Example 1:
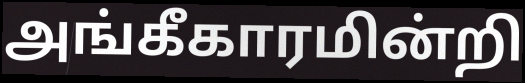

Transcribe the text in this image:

அங்கீகாரமின்றி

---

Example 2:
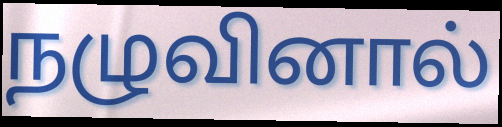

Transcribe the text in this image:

நழுவினால்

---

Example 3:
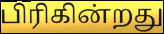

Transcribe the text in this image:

பிரிகின்றது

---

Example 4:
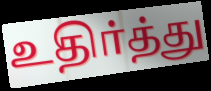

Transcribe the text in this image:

உதிர்த்து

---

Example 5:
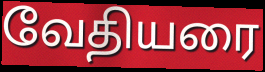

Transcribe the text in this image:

வேதியரை